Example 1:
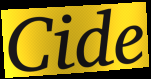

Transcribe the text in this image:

Cide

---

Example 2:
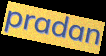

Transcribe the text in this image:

pradan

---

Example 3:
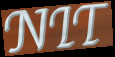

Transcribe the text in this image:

NIT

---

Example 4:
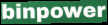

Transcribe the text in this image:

binpower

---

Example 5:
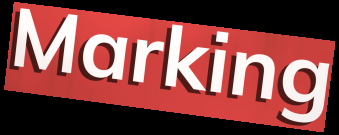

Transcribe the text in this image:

Marking